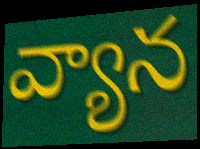
వ్యాన